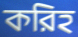
করিহ